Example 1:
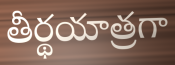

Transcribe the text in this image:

తీర్థయాత్రగా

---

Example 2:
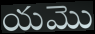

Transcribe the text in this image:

యమొ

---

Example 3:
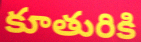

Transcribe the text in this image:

కూతురికి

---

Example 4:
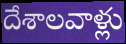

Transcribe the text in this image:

దేశాలవాళ్లు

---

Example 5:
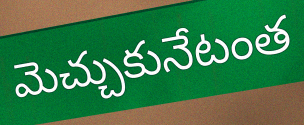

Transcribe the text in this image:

మెచ్చుకునేటంత